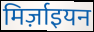
मिर्ज़ाइयन